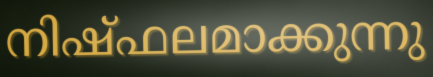
നിഷ്ഫലമാക്കുന്നു